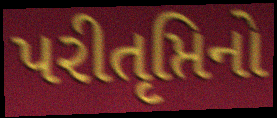
પરીતૃપ્તિનો